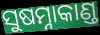
ସୁଷମ୍ନାକାଣ୍ଡ